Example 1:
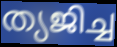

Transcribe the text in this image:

ത്യജിച്ച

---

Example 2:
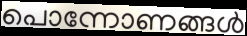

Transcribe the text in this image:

പൊന്നോണങ്ങൾ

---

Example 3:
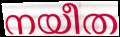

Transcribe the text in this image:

നയീത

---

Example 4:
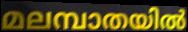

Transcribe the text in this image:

മലമ്പാതയിൽ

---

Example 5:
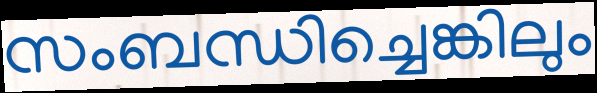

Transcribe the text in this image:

സംബന്ധിച്ചെങ്കിലും